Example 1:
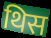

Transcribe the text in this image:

थिस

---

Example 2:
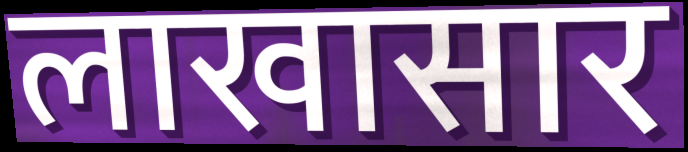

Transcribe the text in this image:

लाखासार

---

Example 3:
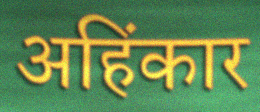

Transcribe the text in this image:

अहिंकार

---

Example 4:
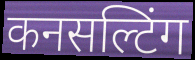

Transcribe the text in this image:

कनसल्टिंग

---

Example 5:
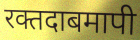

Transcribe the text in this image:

रक्तदाबमापी